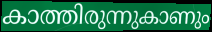
കാത്തിരുന്നുകാണും